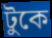
টুকে